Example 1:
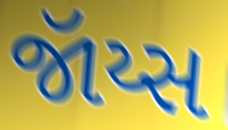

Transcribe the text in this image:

જૉય્સ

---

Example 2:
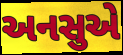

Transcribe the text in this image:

અનસુએ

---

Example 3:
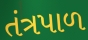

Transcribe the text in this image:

તંત્રપાળ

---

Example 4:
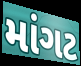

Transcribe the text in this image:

માંગટ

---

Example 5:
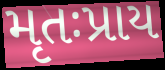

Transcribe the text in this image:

મૃતઃપ્રાય